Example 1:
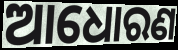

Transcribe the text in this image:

ଆଧୋରଣ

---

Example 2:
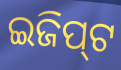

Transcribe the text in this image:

ଇଜିପ୍‌ଟ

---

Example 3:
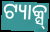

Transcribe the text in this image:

ଟ୍ୟାକ୍ସ୍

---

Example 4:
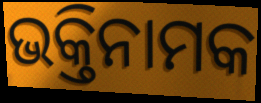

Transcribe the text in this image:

ଭକ୍ତିନାମକ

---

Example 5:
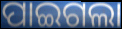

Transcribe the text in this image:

ପାଇଗଲା